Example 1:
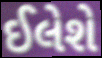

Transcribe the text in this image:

ઈલેશે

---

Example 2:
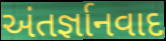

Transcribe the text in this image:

અંતર્જ્ઞાનવાદ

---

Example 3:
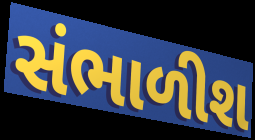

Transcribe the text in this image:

સંભાળીશ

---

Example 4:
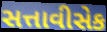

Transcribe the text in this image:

સત્તાવીસેક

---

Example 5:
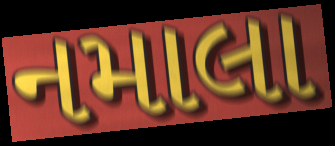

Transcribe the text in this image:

નમાલા